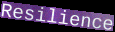
Resilience